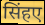
सिंहए